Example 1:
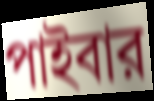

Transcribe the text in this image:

পাইবার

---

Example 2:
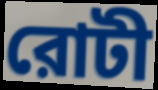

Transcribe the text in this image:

রোটী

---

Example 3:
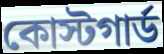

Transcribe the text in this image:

কোস্টগার্ড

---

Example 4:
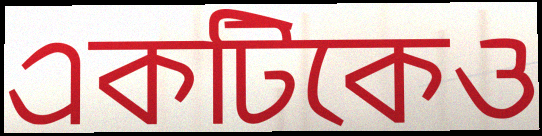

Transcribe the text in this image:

একটিকেও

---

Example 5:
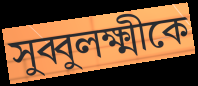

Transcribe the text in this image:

সুব্বুলক্ষ্মীকে